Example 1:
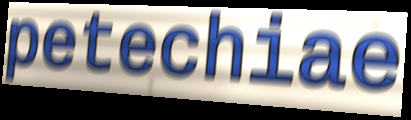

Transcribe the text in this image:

petechiae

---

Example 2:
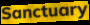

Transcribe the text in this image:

Sanctuary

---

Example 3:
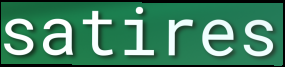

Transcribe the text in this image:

satires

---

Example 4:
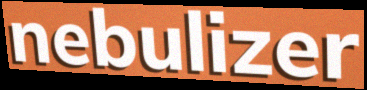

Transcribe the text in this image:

nebulizer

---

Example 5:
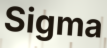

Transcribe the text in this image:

Sigma